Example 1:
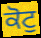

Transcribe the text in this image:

ਕੋਟੁ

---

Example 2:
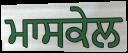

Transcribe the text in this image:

ਮਾਸਕੇਲ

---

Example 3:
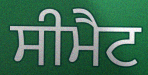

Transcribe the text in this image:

ਸੀਮੈਟ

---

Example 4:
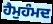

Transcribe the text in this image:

ਹੈਮੁਹੰਮਦ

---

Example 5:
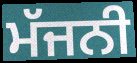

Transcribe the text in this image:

ਮੱਜਨੀ